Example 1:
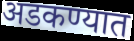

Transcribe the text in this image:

अडकण्यात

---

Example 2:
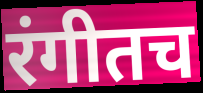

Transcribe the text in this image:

रंगीतच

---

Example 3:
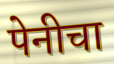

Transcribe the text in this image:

पेनीचा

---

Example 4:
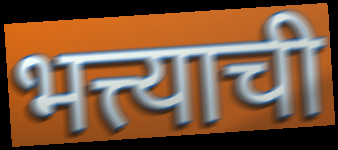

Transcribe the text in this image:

भत्त्याची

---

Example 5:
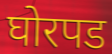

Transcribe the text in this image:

घोरपड